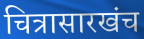
चित्रासारखंच